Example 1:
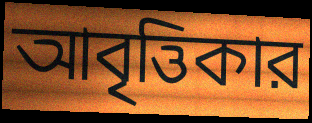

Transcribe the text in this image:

আবৃত্তিকার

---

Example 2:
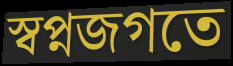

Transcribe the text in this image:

স্বপ্নজগতে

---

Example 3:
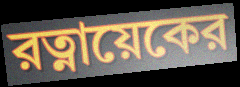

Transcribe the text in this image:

রত্নায়েকের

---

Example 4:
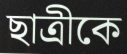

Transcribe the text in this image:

ছাত্রীকে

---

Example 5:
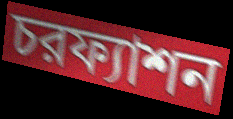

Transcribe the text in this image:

চরফ্যাশন